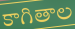
కాగితాల